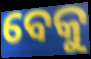
ବେକୁ